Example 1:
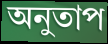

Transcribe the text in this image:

অনুতাপ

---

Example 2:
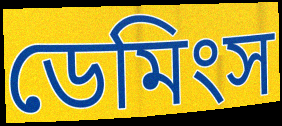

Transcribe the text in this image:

ডেমিংস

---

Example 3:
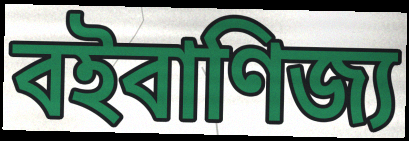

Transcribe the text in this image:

বইবাণিজ্য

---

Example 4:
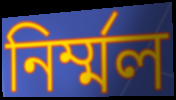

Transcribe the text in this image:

নির্ম্মল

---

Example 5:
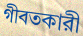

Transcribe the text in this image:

গীবতকারী